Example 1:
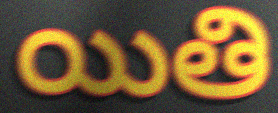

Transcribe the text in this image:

యితి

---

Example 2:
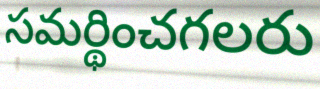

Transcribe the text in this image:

సమర్థించగలరు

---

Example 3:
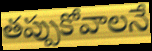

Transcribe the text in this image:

తప్పుకోవాలనే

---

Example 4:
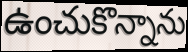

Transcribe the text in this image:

ఉంచుకొన్నాను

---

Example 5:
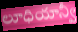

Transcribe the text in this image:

లూధియాన్వీ